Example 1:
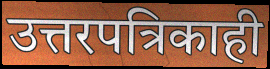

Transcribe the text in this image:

उत्तरपत्रिकाही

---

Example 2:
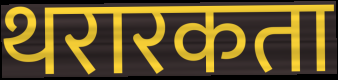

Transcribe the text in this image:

थरारकता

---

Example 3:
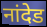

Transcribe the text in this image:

नांदेड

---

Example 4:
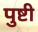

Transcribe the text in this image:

पुष्टी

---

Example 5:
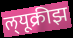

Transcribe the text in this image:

ल्यूक्रीझ